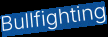
Bullfighting